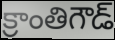
క్రాంతిగౌడ్